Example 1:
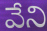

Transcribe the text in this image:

వేని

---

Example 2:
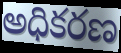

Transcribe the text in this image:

అధికరణ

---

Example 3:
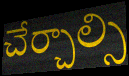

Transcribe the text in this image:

చేర్చాల్సి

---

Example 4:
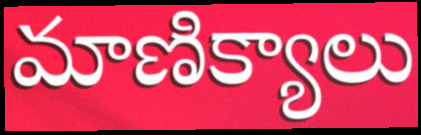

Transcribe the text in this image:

మాణిక్యాలు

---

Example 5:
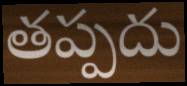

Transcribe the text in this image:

తప్పదు